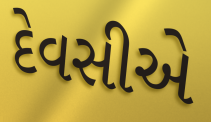
દેવસીએ